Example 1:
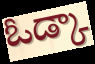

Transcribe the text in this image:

ఓడ్కా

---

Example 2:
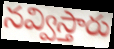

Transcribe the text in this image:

నవ్విస్తారు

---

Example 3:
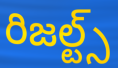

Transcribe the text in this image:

రిజల్ట్స్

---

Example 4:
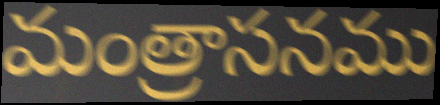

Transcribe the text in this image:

మంత్రాసనము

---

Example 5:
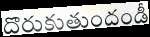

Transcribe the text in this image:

దొరుకుతుందండీ